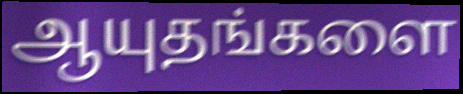
ஆயுதங்களை